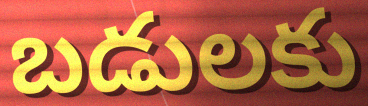
బడులకు